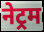
नेट्रम